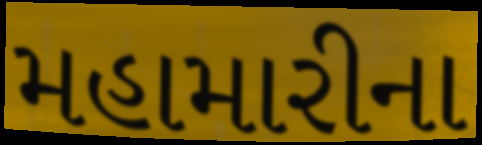
મહામારીના